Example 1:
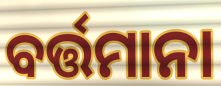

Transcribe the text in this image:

ବର୍ତ୍ତମାନା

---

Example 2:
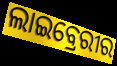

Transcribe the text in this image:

ଲାଇବ୍ରେରୀର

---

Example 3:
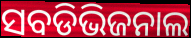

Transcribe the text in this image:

ସବଡିଭିଜନାଲ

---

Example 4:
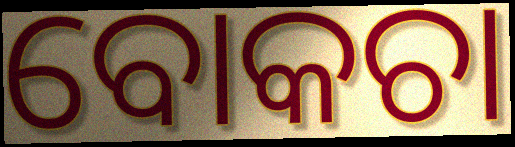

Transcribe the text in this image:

ବୋକଚା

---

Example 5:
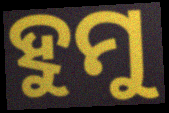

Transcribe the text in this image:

ହୁମୁ